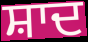
ਸ਼ਾਦ